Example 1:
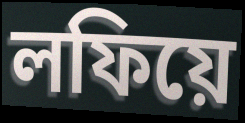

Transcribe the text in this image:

লফিয়ে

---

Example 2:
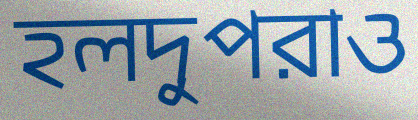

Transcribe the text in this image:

হলদুপরাও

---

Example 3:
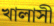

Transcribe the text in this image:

খালাসী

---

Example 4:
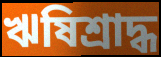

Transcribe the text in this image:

ঋষিশ্রাদ্ধ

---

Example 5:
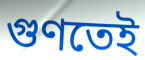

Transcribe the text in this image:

গুণতেই